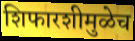
शिफारशीमुळेच